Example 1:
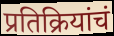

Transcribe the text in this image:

प्रतिक्रियांचं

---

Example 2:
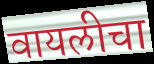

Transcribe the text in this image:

वायलीचा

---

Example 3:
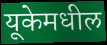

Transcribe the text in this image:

यूकेमधील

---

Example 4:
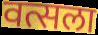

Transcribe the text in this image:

वत्सला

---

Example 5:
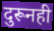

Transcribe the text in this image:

दुरूनही